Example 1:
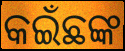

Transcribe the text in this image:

କଇଁଛଙ୍କ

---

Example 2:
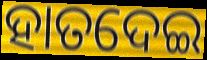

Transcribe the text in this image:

ହାତଦେଇ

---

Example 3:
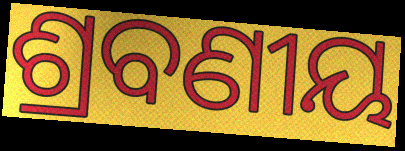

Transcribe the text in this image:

ଶ୍ରବଣୀୟ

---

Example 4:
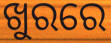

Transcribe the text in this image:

ଖୁରରେ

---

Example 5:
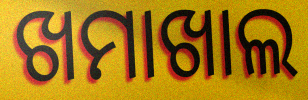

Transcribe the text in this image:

ଖମାଖାଲ